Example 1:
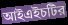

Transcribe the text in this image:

আইএইচটির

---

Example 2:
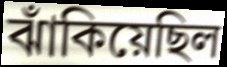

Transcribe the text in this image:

ঝাঁকিয়েছিল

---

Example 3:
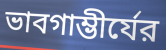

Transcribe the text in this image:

ভাবগাম্ভীর্যের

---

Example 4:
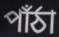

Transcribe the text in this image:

পাঁঠা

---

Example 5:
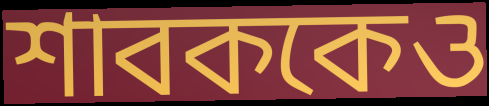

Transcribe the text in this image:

শাবককেও